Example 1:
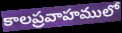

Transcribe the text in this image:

కాలప్రవాహములో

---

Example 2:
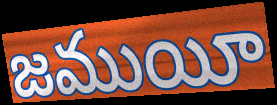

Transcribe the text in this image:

జముయీ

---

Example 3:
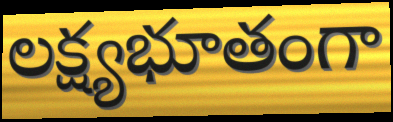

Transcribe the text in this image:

లక్ష్యభూతంగా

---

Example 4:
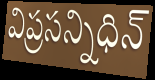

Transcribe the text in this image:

విప్రసన్నిధిన్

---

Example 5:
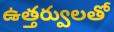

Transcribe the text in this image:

ఉత్తర్వులతో